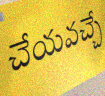
చేయవచ్చే